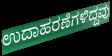
ಉದಾಹರಣೆಗಳಿದ್ದವು